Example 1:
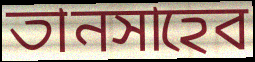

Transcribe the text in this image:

তানসাহেব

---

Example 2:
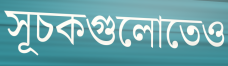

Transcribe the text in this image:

সূচকগুলোতেও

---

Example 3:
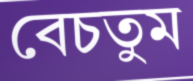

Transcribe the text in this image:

বেচতুম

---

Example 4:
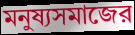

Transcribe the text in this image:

মনুষ্যসমাজের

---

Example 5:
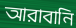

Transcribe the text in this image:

আরাবানি